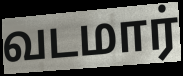
வடமார்